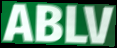
ABLV